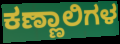
ಕಣ್ಣಾಲಿಗಳ